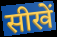
सीखें